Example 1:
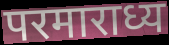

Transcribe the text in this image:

परमाराध्य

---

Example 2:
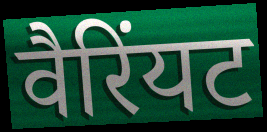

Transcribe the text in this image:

वैरिंयट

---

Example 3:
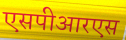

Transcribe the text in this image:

एसपीआरएस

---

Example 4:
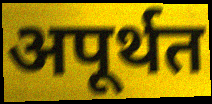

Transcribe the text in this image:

अपूर्थत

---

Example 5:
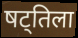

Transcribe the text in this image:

षट्तिला